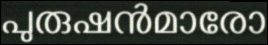
പുരുഷൻമാരോ